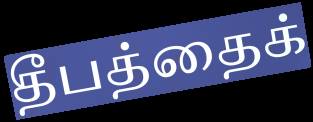
தீபத்தைக்